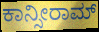
ಕಾನ್ಸೀರಾಮ್